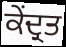
ਕੇਂਦ੍ਰਤ